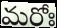
మరోః